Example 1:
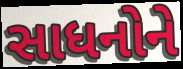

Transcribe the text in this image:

સાધનોને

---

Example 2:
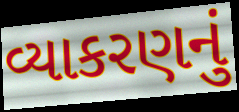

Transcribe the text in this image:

વ્યાકરણનું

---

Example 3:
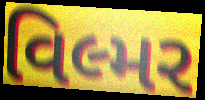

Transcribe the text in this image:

વિલ્મર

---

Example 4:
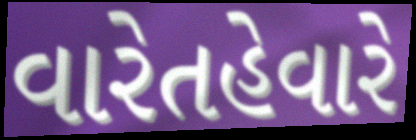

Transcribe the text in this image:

વારેતહેવારે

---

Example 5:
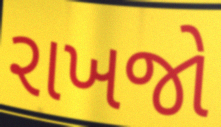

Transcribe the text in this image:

રાખજો